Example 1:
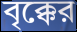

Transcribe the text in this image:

বৃক্কের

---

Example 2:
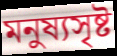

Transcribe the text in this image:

মনুষ্যসৃষ্ট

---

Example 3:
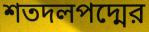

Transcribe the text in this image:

শতদলপদ্মের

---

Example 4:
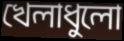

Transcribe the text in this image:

খেলাধুলো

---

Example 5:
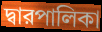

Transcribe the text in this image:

দ্বারপালিকা